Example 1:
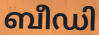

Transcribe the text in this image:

ബീഡി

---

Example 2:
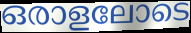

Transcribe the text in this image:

ഒരാളലോടെ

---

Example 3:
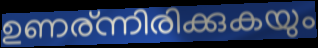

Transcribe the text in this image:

ഉണര്ന്നിരിക്കുകയും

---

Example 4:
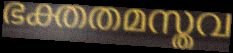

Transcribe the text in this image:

ഭക്തതമസ്തവ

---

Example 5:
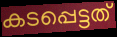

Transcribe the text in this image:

കടപ്പെട്ടത്